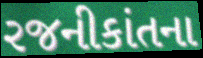
રજનીકાંતના